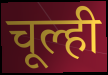
चूल्ही